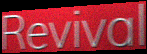
Revival